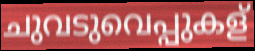
ചുവടുവെപ്പുകള്